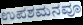
ಉಪಶಮನವೂ